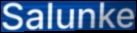
Salunke